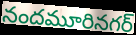
నందమూరినగర్